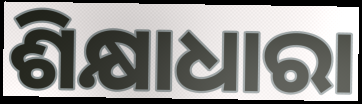
ଶିକ୍ଷାଧାରା